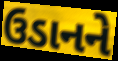
ઉડાનને